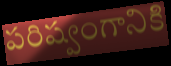
పరిష్వంగానికి